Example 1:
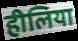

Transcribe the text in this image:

हीलिया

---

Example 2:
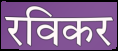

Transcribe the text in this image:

रविकर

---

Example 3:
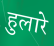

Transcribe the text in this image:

हुलारे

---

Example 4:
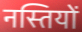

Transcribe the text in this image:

नस्तियों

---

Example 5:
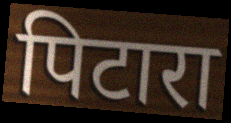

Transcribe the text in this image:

पिटारा